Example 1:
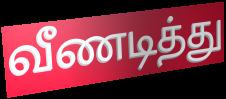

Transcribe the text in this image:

வீணடித்து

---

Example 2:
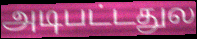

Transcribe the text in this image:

அடிபட்டதுல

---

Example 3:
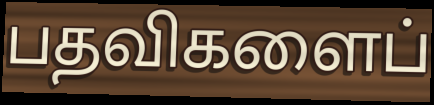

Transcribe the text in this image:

பதவிகளைப்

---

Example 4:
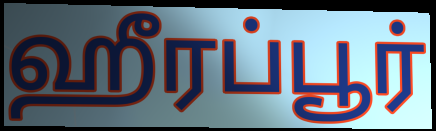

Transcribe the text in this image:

ஹீரப்பூர்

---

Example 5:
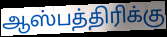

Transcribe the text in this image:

ஆஸ்பத்திரிக்கு